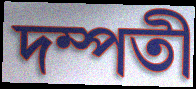
দম্পতী